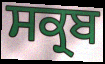
ਸਕ੍ਰਬ